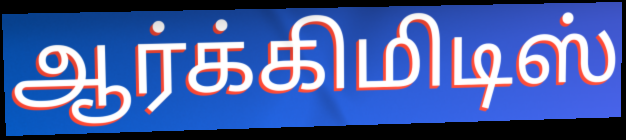
ஆர்க்கிமிடிஸ்